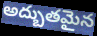
అద్బుతమైన